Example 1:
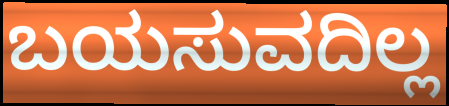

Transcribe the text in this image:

ಬಯಸುವದಿಲ್ಲ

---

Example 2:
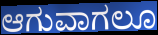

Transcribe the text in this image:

ಆಗುವಾಗಲೂ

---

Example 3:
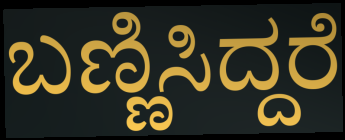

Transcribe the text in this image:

ಬಣ್ಣಿಸಿದ್ದರೆ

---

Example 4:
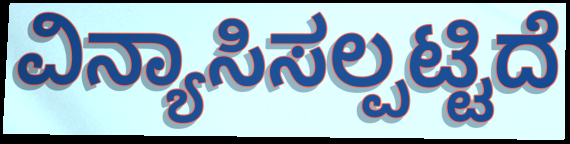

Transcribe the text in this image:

ವಿನ್ಯಾಸಿಸಲ್ಪಟ್ಟಿದೆ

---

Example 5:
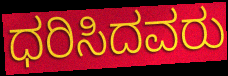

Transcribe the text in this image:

ಧರಿಸಿದವರು